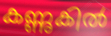
കണ്ണുകിൽ